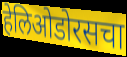
हेलिओडोरसचा